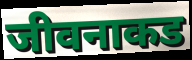
जीवनाकड